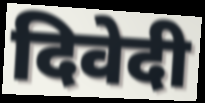
दिवेदी